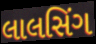
લાલસિંગ